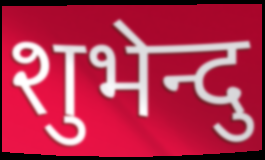
शुभेन्दु